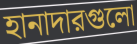
হানাদারগুলো